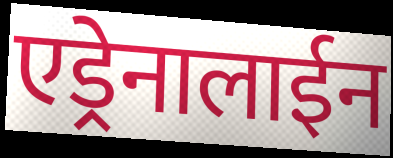
एड्रेनालाईन